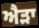
ਐੜਾ